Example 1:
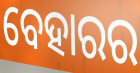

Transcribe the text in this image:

ବେହାରର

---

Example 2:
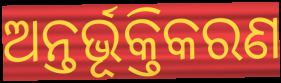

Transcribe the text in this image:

ଅନ୍ତର୍ଭୂକ୍ତିକରଣ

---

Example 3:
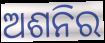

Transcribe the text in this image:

ଅଶନିର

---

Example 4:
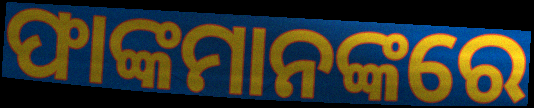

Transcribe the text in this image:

ଫାଙ୍କମାନଙ୍କରେ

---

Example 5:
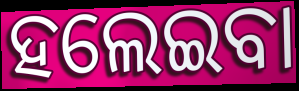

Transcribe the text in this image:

ହଲେଇବା